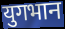
युगभान